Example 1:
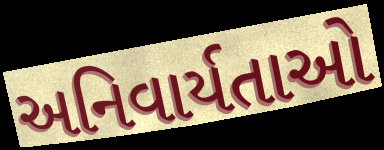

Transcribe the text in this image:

અનિવાર્યતાઓ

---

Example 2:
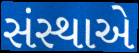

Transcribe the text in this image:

સંસ્થાએ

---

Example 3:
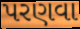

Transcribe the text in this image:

પરણવા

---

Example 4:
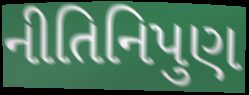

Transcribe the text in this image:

નીતિનિપુણ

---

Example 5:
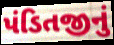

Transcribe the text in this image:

પંડિતજીનું